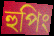
হুপিং